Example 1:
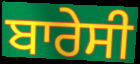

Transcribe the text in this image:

ਬਾਰੇਸੀ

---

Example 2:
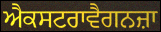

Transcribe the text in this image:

ਐਕਸਟਰਾਵੈਗਨਜ਼ਾ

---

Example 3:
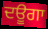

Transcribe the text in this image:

ਦਊਗਾ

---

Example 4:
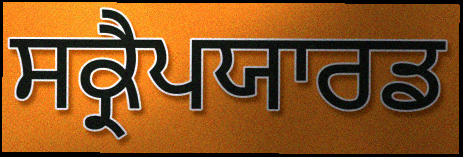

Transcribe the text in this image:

ਸਕ੍ਰੈਪਯਾਰਡ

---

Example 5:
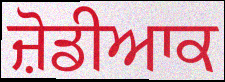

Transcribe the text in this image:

ਜ਼ੋਡੀਆਕ